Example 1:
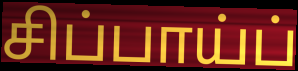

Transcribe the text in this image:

சிப்பாய்ப்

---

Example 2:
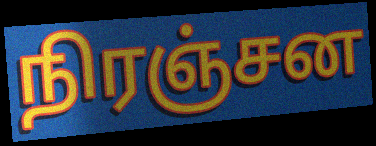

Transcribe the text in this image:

நிரஞ்சன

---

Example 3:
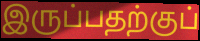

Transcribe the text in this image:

இருப்பதற்குப்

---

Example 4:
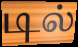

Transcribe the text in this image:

டில்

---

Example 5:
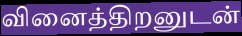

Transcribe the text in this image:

வினைத்திறனுடன்